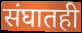
संघातही